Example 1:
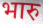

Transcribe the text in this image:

भारु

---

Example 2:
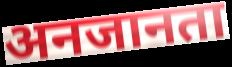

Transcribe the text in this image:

अनजानता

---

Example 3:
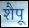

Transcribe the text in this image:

शैपू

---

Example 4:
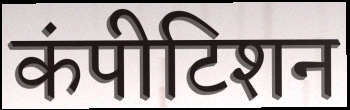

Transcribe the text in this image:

कंपीटिशन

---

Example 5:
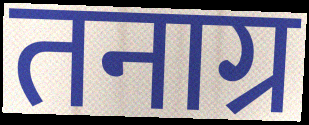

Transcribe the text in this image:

तनाग्र